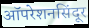
ऑपरेशनसिंदूर